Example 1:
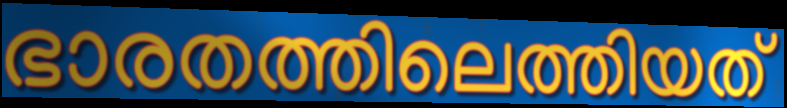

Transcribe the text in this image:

ഭാരതത്തിലെത്തിയത്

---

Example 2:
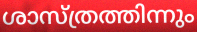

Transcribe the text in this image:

ശാസ്ത്രത്തിന്നും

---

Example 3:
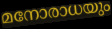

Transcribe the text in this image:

മനോരാധയും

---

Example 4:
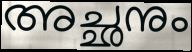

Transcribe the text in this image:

അച്ഛനും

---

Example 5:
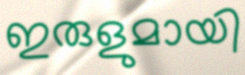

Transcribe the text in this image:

ഇരുളുമായി